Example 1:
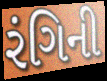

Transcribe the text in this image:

રંગિની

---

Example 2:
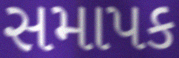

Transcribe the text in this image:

સમાપક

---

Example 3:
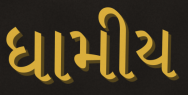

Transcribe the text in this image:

ધામીય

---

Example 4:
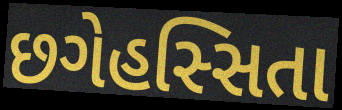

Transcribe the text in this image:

છગેહસ્સિતા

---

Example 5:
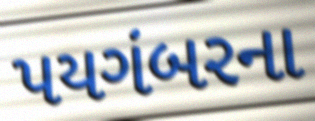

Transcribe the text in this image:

પયગંબરના